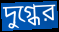
দুগ্ধের